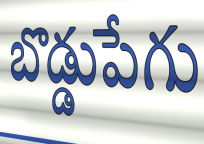
బొడ్డుపేగు